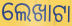
ଲେଖାଟା